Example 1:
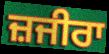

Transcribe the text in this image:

ਜ਼ਜੀਰਾ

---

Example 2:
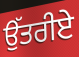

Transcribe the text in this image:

ਉੱਤਰੀਏ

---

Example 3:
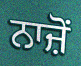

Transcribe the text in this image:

ਨਾਜ਼ੋਂ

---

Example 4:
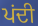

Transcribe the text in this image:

ਪਂਦੀ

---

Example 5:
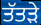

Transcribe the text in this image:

ਤੱਤੜੇ